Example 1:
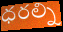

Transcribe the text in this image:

ధరల్ని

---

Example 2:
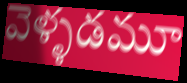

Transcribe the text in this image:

వెళ్ళడమూ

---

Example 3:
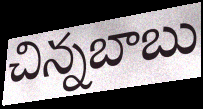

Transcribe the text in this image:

చిన్నబాబు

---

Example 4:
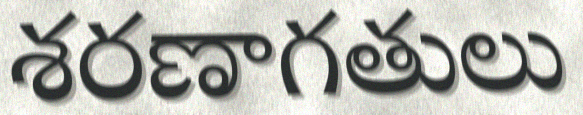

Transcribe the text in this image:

శరణాగతులు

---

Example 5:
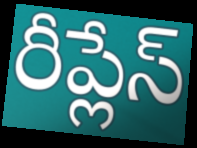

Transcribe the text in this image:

రీప్లేస్